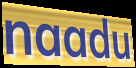
naadu